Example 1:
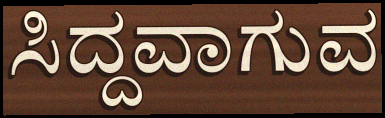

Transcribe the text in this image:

ಸಿದ್ದವಾಗುವ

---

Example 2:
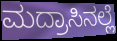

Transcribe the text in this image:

ಮದ್ರಾಸಿನಲ್ಲೆ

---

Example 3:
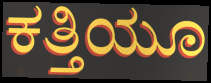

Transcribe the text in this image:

ಕತ್ತಿಯೂ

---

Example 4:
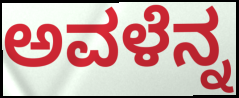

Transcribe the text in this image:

ಅವಳೆನ್ನ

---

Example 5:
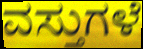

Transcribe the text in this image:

ವಸ್ತುಗಳೆ